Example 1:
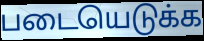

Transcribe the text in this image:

படையெடுக்க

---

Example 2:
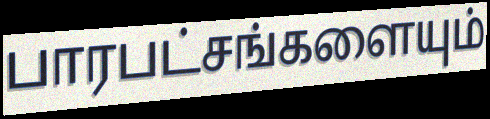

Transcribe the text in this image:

பாரபட்சங்களையும்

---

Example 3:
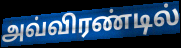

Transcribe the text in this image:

அவ்விரண்டில்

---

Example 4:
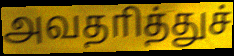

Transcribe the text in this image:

அவதரித்துச்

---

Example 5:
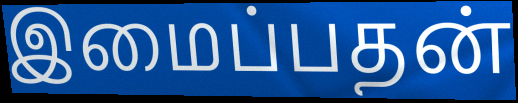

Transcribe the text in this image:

இமைப்பதன்